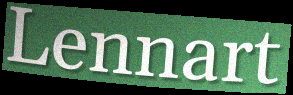
Lennart